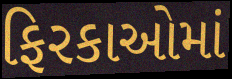
ફિરકાઓમાં